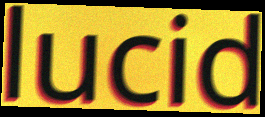
lucid